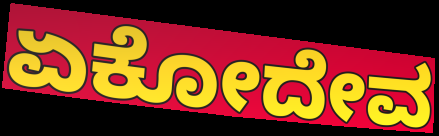
ಏಕೋದೇವ